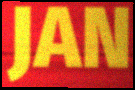
JAN